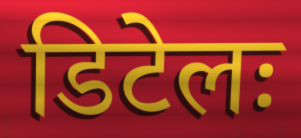
डिटेलः